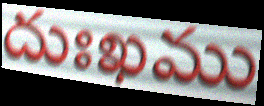
దుఃఖము